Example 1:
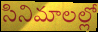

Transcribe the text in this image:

సినిమాలల్లో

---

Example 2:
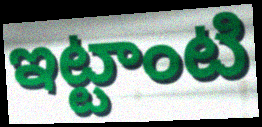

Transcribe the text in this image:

ఇట్టాంటి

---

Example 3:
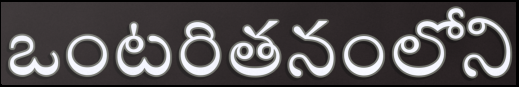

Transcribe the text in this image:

ఒంటరితనంలోని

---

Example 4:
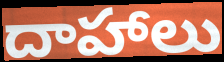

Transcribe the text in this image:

దాహాలు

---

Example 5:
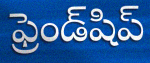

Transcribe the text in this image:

ఫ్రెండ్‌షిప్